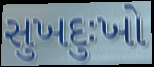
સુખદુઃખો